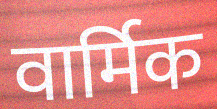
वार्मिक